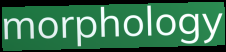
morphology